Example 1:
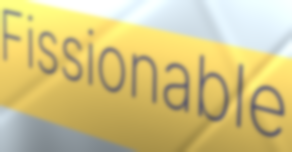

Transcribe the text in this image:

Fissionable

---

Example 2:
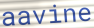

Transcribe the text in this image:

aavine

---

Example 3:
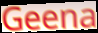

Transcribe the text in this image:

Geena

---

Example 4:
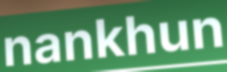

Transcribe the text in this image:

nankhun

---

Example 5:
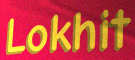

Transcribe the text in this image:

Lokhit